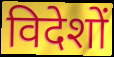
विदेशों